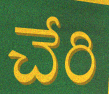
చేరి